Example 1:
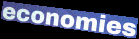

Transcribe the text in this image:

economies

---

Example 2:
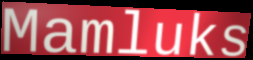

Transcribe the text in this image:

Mamluks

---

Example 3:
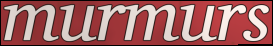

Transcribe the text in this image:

murmurs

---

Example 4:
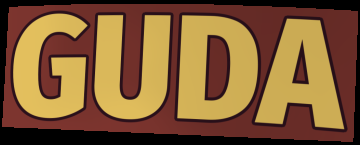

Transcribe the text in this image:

GUDA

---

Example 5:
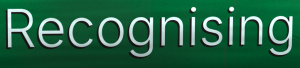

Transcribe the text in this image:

Recognising